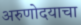
अरुणोदयाचा